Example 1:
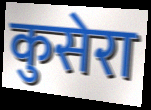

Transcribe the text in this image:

कुसेरा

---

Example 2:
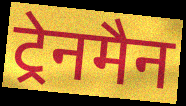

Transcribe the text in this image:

ट्रेनमैन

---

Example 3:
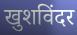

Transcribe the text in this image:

खुशविंदर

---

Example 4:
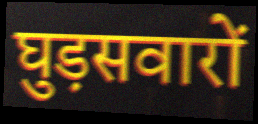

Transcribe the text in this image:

घुड़सवारों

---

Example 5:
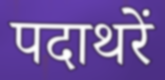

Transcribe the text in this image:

पदाथरें